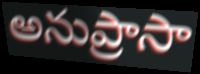
అనుప్రాసా